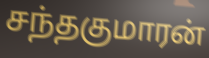
சந்தகுமாரன்